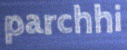
parchhi